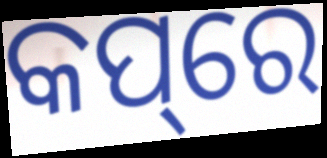
କପ୍‌ରେ